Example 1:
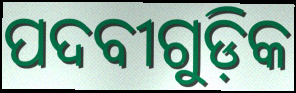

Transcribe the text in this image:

ପଦବୀଗୁଡ଼ିକ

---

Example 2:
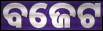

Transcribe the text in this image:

ବଜେଟ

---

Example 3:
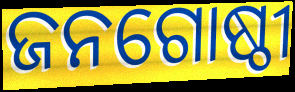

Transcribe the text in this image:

ଜନଗୋଷ୍ଠୀ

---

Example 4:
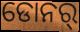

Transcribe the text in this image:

ଡୋନର୍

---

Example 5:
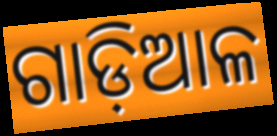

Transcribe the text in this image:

ଗାଡ଼ିଆଳ